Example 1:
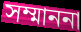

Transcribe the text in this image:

সম্মাননা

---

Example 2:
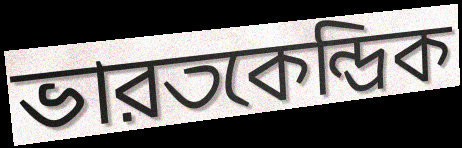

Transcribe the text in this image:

ভারতকেন্দ্রিক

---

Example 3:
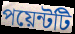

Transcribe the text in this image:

পয়েন্টটি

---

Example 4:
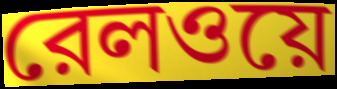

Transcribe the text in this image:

রেলওয়ে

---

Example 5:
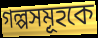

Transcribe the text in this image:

গল্পসমূহকে